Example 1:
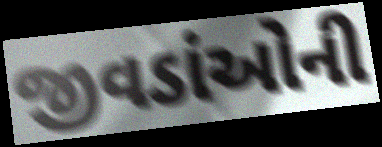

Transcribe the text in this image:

જીવડાંઓની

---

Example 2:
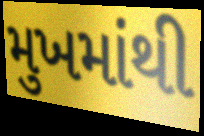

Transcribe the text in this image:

મુખમાંથી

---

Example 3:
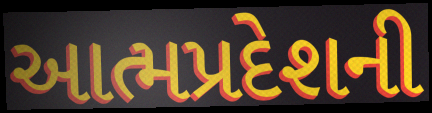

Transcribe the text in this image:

આત્મપ્રદેશની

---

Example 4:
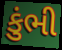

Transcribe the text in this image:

કુંભી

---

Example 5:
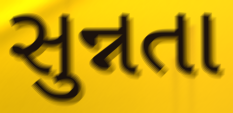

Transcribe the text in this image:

સુન્નતા